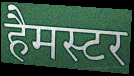
हैमस्टर